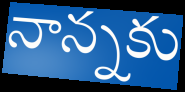
నాన్నకు